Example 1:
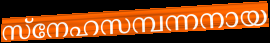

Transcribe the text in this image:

സ്നേഹസമ്പന്നനായ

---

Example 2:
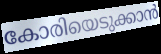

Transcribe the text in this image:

കോരിയെടുക്കാൻ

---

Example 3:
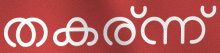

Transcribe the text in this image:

തകര്ന്ന്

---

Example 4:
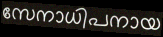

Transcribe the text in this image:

സേനാധിപനായ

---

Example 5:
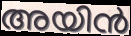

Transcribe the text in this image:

അയിൻ